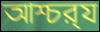
আশ্চর্‍য